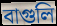
বাগুলি